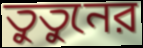
তুতুনের